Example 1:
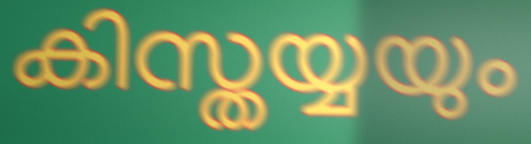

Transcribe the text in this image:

കിസ്തയ്യയും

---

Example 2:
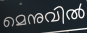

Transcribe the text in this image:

മെനുവിൽ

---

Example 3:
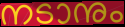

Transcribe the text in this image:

നടാനും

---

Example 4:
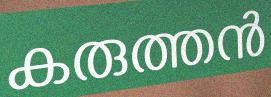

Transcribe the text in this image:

കരുത്തൻ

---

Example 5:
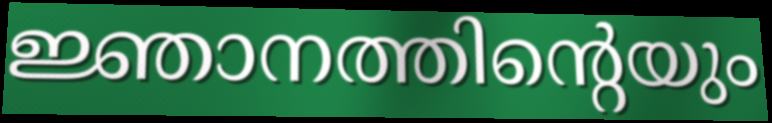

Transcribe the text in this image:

ജ്ഞാനത്തിന്റെയും